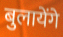
बुलायेंगे